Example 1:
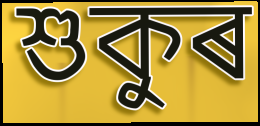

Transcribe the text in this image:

শুকুৰ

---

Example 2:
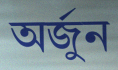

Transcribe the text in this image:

অৰ্জুন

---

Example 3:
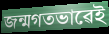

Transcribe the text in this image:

জন্মগতভাৱেই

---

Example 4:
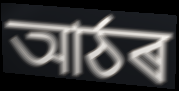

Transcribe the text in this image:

আঠৰ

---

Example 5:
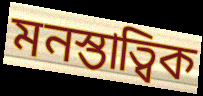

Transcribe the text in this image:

মনস্তাত্বিক